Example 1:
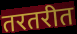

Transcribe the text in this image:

तरतरीत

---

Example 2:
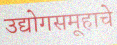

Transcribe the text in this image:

उद्योगसमूहाचे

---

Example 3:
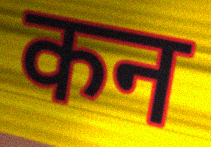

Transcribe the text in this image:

कन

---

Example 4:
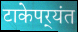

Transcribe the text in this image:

टाकेपर्यंत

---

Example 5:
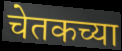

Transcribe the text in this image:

चेतकच्या